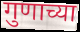
गुणाच्या